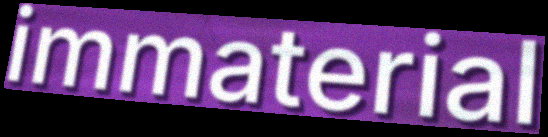
immaterial